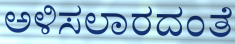
ಅಳಿಸಲಾರದಂತೆ